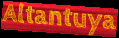
Altantuya